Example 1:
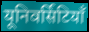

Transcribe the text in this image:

यूनिवर्सिटियाँ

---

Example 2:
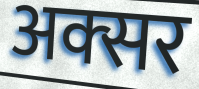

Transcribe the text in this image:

अक्‍सर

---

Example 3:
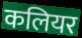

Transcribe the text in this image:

कलियर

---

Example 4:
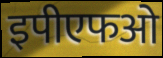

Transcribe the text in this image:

इपीएफओ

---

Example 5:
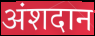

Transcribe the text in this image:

अंशदान